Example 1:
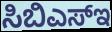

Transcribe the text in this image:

ಸಿಬಿಎಸ್ಇ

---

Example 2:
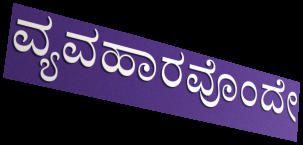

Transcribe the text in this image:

ವ್ಯವಹಾರವೊಂದೇ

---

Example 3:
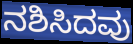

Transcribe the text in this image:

ನಶಿಸಿದವು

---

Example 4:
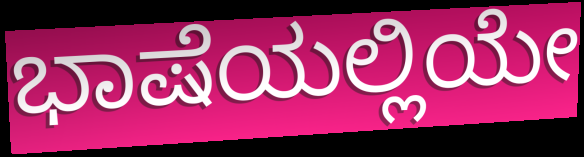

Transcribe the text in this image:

ಭಾಷೆಯಲ್ಲಿಯೇ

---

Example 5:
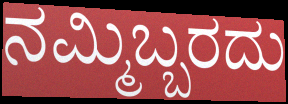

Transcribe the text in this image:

ನಮ್ಮಿಬ್ಬರದು